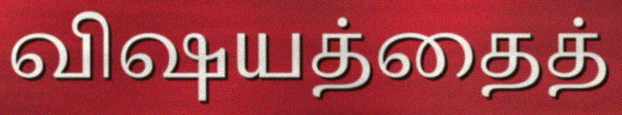
விஷயத்தைத்